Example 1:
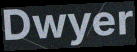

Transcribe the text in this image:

Dwyer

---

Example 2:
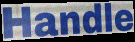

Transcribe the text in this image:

Handle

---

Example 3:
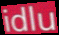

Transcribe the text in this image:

idlu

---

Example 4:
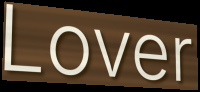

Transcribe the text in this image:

Lover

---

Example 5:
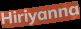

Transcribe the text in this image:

Hiriyanna